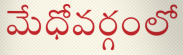
మేధోవర్గంలో